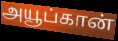
அயூப்கான்